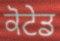
ਕੋਟੇਡ